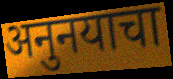
अनुनयाचा